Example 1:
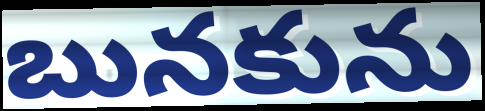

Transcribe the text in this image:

బునకును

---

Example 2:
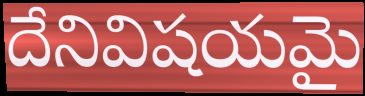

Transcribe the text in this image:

దేనివిషయమై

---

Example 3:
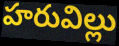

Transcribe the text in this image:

హరువిల్లు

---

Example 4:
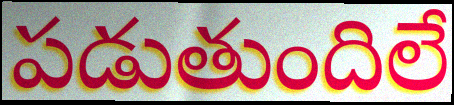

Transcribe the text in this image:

పడుతుందిలే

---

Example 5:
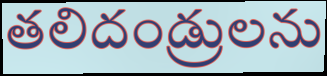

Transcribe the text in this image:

తలిదండ్రులను